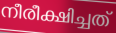
നീരീക്ഷിച്ചത്